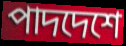
পাদদেশে